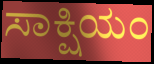
ಸಾಕ್ಷಿಯಂ